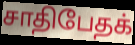
சாதிபேதக்